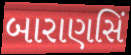
બારાણસિં